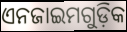
ଏନଜାଇମଗୁଡ଼ିକ